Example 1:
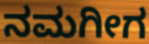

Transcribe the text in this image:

ನಮಗೀಗ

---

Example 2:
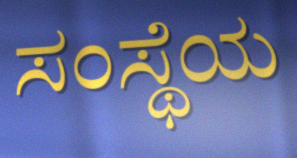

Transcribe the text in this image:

ಸಂಸ್ಥೆಯ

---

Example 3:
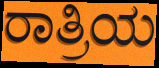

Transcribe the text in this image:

ರಾತ್ರಿಯ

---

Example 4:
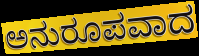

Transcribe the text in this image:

ಅನುರೂಪವಾದ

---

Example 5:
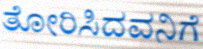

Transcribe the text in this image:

ತೋರಿಸಿದವನಿಗೆ